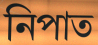
নিপাত